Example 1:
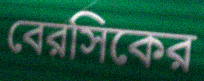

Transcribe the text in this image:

বেরসিকের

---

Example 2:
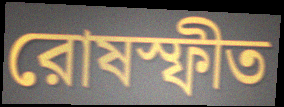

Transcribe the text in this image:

রোষস্ফীত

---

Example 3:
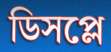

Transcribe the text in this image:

ডিসপ্লে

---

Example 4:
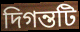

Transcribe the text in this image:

দিগন্তটি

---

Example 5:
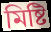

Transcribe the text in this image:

মিষ্টি